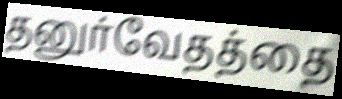
தனுர்வேதத்தை